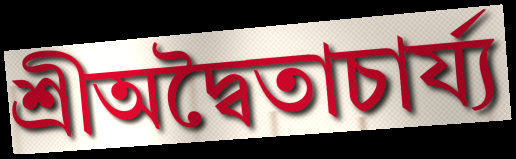
শ্রীঅদ্বৈতাচার্য্য